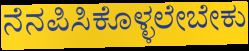
ನೆನಪಿಸಿಕೊಳ್ಳಲೇಬೇಕು